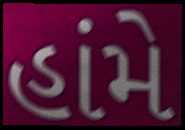
હાંમે